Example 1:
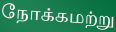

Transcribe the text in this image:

நோக்கமற்று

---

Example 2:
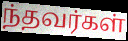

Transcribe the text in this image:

ந்தவர்கள்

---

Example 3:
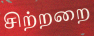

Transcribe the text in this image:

சிற்றறை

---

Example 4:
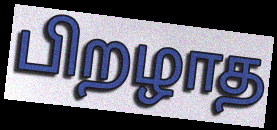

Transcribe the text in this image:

பிறழாத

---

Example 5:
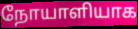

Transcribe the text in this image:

நோயாளியாக